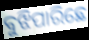
ବୁଝିପାରିଛେ